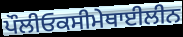
ਪੌਲੀਓਕਸੀਮੇਥਾਈਲੀਨ